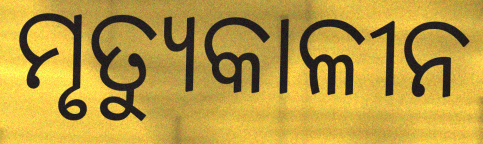
ମୃତ୍ୟୁକାଳୀନ